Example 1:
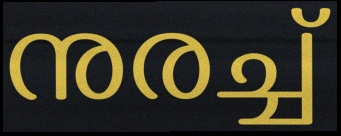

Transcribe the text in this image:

നുരച്ച്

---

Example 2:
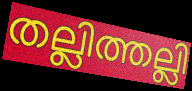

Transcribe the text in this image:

തല്ലിത്തല്ലി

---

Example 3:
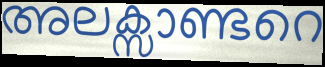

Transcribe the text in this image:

അലക്സാണ്ടറെ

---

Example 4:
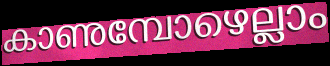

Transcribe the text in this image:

കാണുമ്പോഴെല്ലാം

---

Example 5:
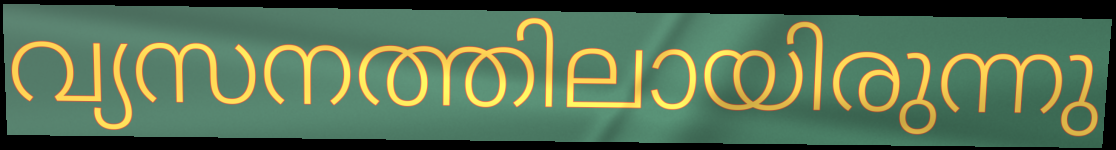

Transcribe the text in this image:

വ്യസനത്തിലായിരുന്നു